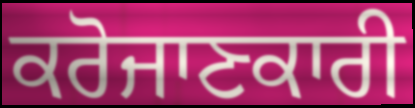
ਕਰੋਜਾਣਕਾਰੀ